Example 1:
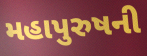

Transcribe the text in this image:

મહાપુરુષની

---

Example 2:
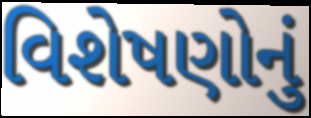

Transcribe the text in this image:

વિશેષણોનું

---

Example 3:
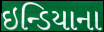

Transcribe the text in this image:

ઇન્ડિયાના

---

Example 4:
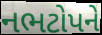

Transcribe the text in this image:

નભટોપને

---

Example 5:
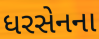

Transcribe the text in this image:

ધરસેનના